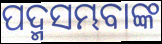
ପଦ୍ମସମ୍ଭବାଙ୍କ